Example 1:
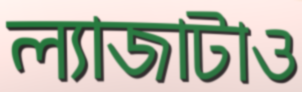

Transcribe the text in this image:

ল্যাজাটাও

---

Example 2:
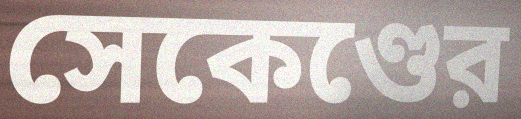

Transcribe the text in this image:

সেকেণ্ডের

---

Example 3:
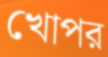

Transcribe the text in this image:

খোপর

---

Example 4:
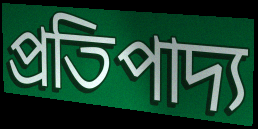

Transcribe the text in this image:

প্রতিপাদ্য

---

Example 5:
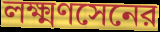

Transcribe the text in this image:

লক্ষ্মণসেনের